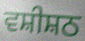
ਵਸ਼ੀਸ਼ਠ